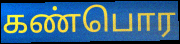
கண்பொர